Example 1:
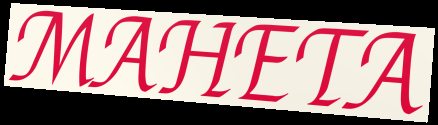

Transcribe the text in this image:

MAHETA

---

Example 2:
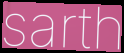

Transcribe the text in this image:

sarth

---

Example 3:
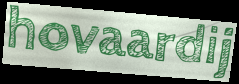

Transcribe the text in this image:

hovaardij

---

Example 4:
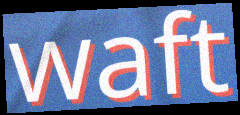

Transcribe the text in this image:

waft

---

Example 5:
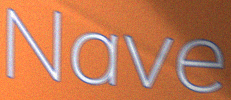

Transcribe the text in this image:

Nave